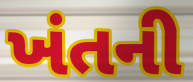
ખંતની